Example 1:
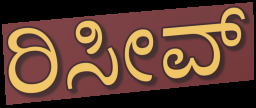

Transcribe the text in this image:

ರಿಸೀವ್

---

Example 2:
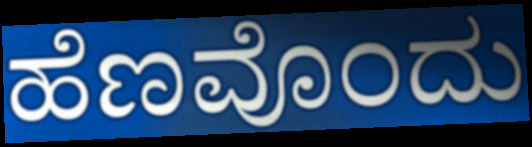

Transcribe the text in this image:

ಹೆಣವೊಂದು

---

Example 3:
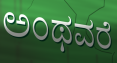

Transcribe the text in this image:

ಅಂಥವರೆ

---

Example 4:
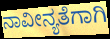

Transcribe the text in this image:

ನಾವೀನ್ಯತೆಗಾಗಿ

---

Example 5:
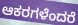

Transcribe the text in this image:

ಆಕರಗಳೆಂದರೆ